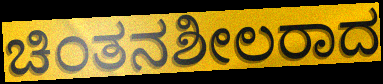
ಚಿಂತನಶೀಲರಾದ